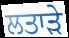
ਲਤਾਡ਼ੇ